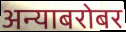
अन्याबरोबर